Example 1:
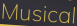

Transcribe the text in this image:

Musical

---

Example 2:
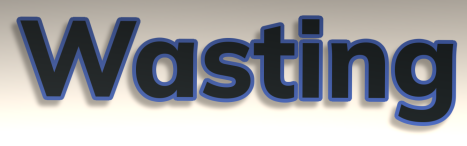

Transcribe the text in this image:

Wasting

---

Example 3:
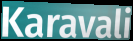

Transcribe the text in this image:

Karavali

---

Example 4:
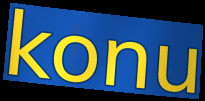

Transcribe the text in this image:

konu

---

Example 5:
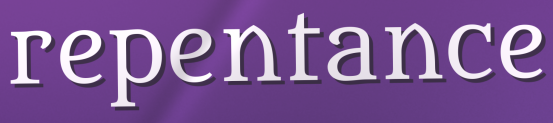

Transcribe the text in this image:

repentance